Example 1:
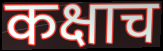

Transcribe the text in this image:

कक्षाच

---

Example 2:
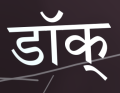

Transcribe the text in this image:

डॉक्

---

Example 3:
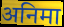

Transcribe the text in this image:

अनिमा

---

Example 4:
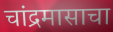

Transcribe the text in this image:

चांद्रमासाचा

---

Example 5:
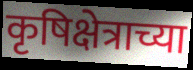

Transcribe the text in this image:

कृषिक्षेत्राच्या